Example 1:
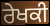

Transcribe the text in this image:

ਰੇਖਕੀ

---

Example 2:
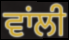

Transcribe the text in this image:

ਵਾਂਲੀ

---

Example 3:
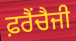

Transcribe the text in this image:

ਫ਼ਰੈਂਚੈਜੀ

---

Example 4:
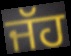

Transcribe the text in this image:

ਜੱਹ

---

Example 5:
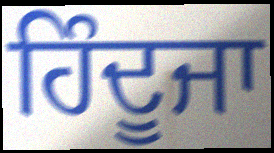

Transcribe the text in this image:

ਹਿੰਦੂਜਾ